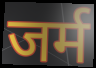
जर्म